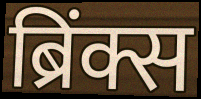
ब्रिंक्स